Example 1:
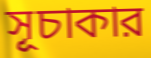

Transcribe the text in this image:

সূচাকার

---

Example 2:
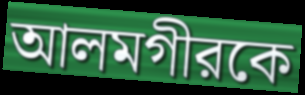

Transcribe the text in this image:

আলমগীরকে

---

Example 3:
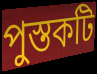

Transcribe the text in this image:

পুস্তকটি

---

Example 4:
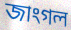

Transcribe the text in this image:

জাংগল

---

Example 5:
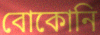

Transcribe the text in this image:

বোকোনি